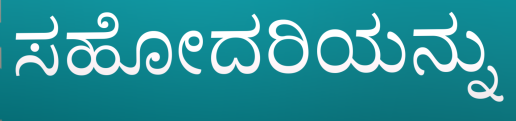
ಸಹೋದರಿಯನ್ನು